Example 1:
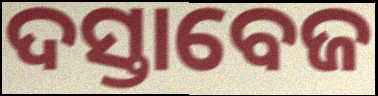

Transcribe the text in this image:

ଦସ୍ତାବେଜ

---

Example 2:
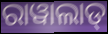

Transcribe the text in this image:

ରାୱାଲାଡ୍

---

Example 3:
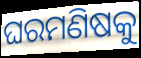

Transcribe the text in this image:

ଘରମଣିଷକୁ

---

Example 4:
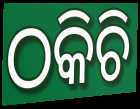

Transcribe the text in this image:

ଠକିଚି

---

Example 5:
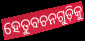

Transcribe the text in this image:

ହେତୁବଚନଗୁଡ଼ିକୁ